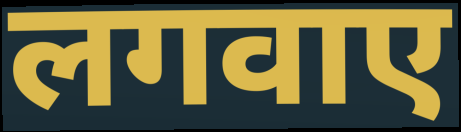
लगवाए